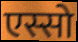
एस्सो